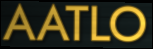
AATLO